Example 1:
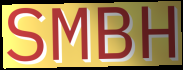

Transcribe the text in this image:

SMBH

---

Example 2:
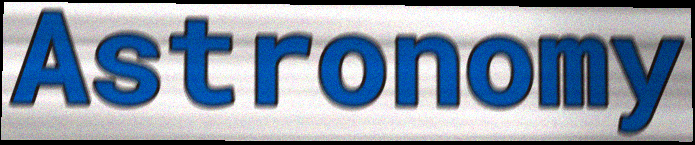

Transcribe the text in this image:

Astronomy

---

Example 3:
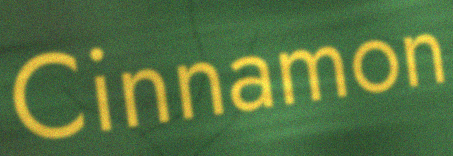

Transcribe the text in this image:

Cinnamon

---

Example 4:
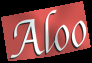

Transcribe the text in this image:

Aloo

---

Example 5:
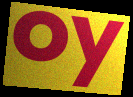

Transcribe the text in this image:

oy